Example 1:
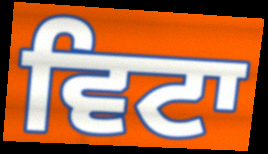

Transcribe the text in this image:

ਵਿਟਾ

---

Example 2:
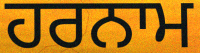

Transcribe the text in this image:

ਹਰਨਾਮ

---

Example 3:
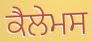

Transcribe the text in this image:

ਕੈਲੇਮਸ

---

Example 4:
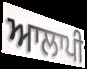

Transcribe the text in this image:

ਆਲਾਪੀ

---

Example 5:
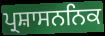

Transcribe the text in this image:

ਪ੍ਰਸ਼ਾਸਨਨਿਕ